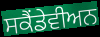
ਸਕੈਂਡੇਵੀਅਨ